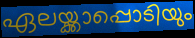
ഏലയ്ക്കാപ്പൊടിയും